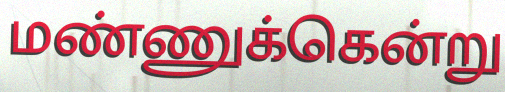
மண்ணுக்கென்று